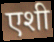
एशी